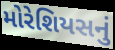
મોરેશિયસનું